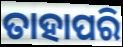
ତାହାପରି